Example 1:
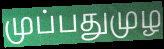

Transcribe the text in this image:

முப்பதுமுழ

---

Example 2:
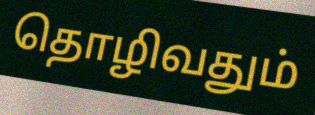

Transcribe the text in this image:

தொழிவதும்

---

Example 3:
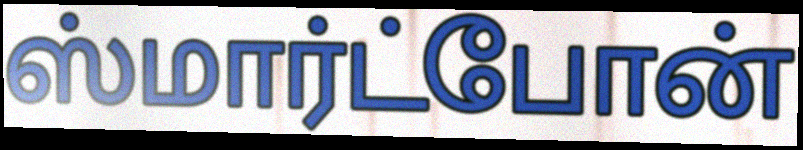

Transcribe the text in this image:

ஸ்மார்ட்போன்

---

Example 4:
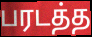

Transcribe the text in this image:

பரடத்த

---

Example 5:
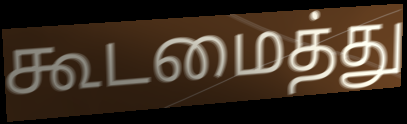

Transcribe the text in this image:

கூடமைத்து